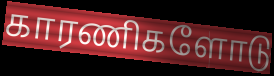
காரணிகளோடு